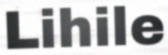
Lihile